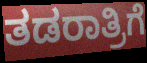
ತಡರಾತ್ರಿಗೆ